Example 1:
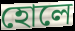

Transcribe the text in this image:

হোলে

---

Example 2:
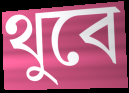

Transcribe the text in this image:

থুবে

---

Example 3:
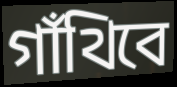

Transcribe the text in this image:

গাঁথিবে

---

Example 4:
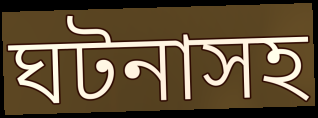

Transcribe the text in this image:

ঘটনাসহ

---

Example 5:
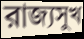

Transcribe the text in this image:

রাজ্যসুখ